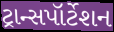
ટ્રાન્સપૉર્ટેશન